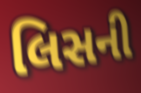
લિસની